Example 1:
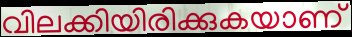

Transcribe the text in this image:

വിലക്കിയിരിക്കുകയാണ്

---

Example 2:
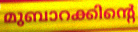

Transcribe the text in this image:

മുബാറക്കിന്റെ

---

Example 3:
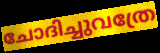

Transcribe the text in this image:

ചോദിച്ചുവത്രേ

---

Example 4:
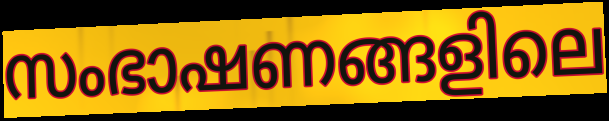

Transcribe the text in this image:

സംഭാഷണങ്ങളിലെ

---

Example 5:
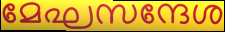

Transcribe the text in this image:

മേഘസന്ദേശ